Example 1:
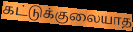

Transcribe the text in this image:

கட்டுக்குலையாத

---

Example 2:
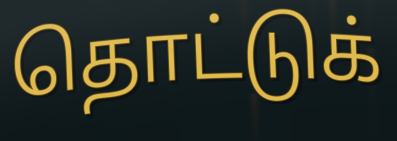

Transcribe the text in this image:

தொட்டுக்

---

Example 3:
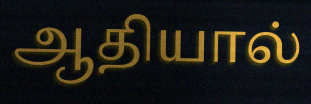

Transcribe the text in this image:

ஆதியால்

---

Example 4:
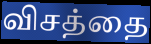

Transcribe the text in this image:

விசத்தை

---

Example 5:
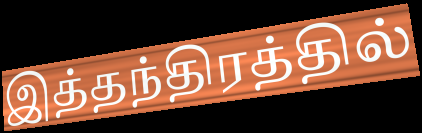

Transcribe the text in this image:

இத்தந்திரத்தில்